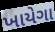
ખાયેગા